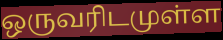
ஒருவரிடமுள்ள